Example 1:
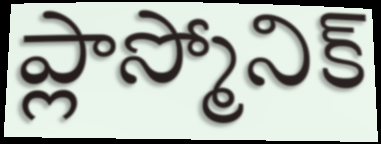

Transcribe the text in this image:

ప్లాస్మోనిక్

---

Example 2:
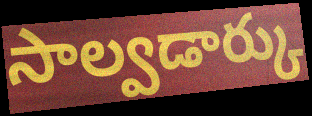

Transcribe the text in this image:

సాల్వడార్కు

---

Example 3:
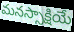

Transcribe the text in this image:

మనస్సాక్షియే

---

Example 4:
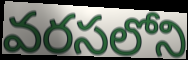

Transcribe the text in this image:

వరసలోని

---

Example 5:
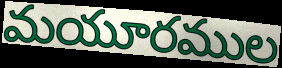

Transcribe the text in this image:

మయూరముల